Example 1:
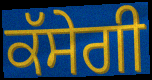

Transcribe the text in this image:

ਕੱਸੇਗੀ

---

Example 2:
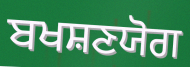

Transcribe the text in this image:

ਬਖਸ਼ਣਯੋਗ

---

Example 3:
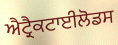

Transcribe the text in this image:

ਐਟ੍ਰੈਕਟਾਈਲੋਡਸ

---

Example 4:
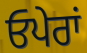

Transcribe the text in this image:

ਓਪੇਰਾਂ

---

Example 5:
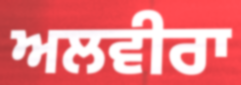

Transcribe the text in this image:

ਅਲਵੀਰਾ